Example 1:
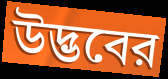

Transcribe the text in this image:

উদ্ভবের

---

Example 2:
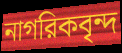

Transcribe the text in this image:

নাগরিকবৃন্দ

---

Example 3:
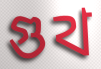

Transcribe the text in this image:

গুথ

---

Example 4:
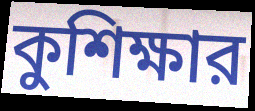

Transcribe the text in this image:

কুশিক্ষার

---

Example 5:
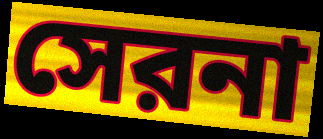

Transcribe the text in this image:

সেরনা